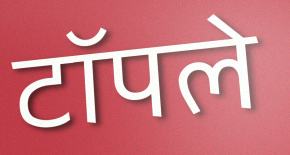
टॉपले